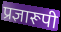
प्रज्ञारूपी